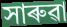
সাৰুৱা